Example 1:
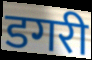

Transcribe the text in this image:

डगरी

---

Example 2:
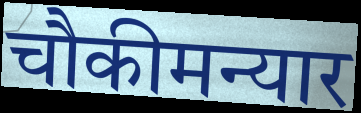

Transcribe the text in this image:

चौकीमन्यार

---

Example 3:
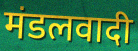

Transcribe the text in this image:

मंडलवादी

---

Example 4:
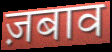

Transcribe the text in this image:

ज़बाव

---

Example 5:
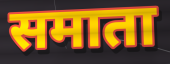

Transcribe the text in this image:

समाता